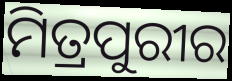
ମିତ୍ରପୁରୀର